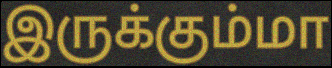
இருக்கும்மா